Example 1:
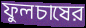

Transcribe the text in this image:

ফুলচাষের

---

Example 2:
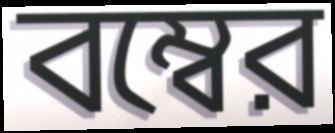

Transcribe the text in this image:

বম্বের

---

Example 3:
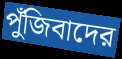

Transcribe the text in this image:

পুঁজিবাদের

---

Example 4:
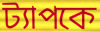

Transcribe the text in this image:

ট্যাপকে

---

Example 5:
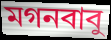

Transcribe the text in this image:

মগনবাবু